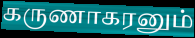
கருணாகரனும்